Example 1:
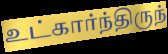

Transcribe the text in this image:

உட்கார்ந்திருந்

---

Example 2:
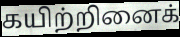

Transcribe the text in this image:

கயிற்றினைக்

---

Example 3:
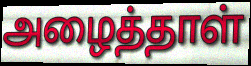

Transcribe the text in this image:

அழைத்தாள்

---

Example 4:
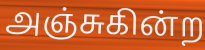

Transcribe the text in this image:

அஞ்சுகின்ற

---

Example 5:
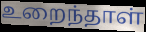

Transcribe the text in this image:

உறைந்தாள்